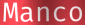
Manco